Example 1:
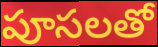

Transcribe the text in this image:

పూసలతో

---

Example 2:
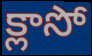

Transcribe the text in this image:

క్లాసో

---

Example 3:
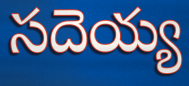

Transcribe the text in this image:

సదెయ్య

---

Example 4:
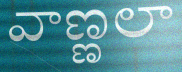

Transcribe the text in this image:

వాణ్ణలా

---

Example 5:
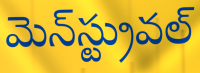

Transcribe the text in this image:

మెన్‌స్ట్రువల్